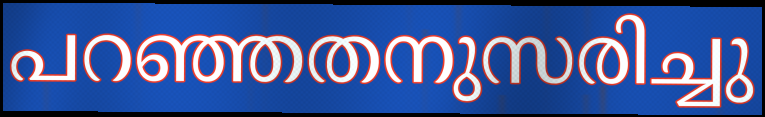
പറഞ്ഞതനുസരിച്ചു